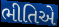
ભીતિએ